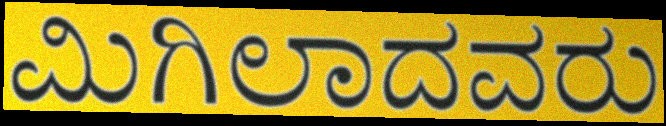
ಮಿಗಿಲಾದವರು